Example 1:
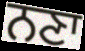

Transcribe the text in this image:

ਨਣਾ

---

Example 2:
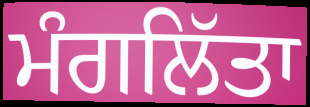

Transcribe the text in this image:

ਮੰਗਲਿੱਤਾ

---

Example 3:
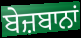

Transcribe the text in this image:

ਬੇਜ਼ਬਾਨਾਂ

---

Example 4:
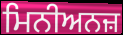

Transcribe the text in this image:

ਮਿਨੀਅਨਜ਼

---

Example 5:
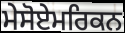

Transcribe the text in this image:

ਮੇਸੋਏਮਰਿਕਨ